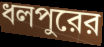
ধলপুরের